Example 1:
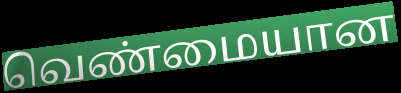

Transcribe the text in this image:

வெண்மையான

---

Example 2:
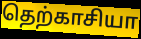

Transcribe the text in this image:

தெற்காசியா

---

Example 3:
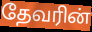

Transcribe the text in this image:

தேவரின்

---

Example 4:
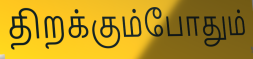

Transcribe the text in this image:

திறக்கும்போதும்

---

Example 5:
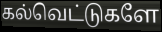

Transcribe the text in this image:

கல்வெட்டுகளே